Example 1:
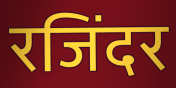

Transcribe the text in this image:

रजिंदर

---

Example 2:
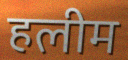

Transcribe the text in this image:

हलीम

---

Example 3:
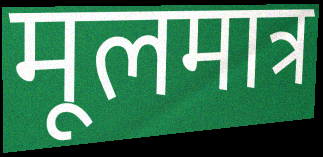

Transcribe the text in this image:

मूलमात्र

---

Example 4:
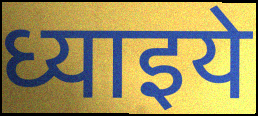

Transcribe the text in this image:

ध्याइये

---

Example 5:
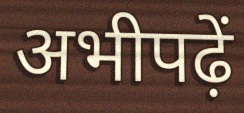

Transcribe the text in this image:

अभीपढ़ें